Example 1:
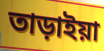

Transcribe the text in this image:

তাড়াইয়া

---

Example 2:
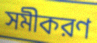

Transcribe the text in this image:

সমীকরণ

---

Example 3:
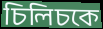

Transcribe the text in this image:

চিলিচকে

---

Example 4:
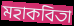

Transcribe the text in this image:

মহাকবিতা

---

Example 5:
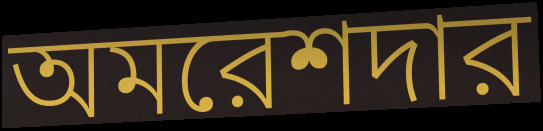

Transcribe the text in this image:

অমরেশদার